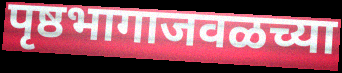
पृष्ठभागाजवळच्या